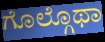
ಗೊಲ್ಗೊಥಾ